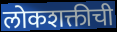
लोकशक्तीची